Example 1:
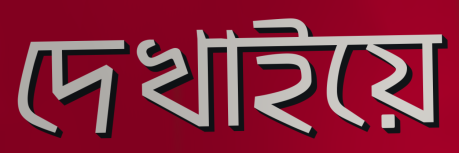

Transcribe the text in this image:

দেখাইয়ে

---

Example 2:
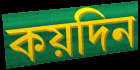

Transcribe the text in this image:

কয়দিন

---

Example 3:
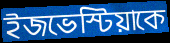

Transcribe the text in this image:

ইজভেস্টিয়াকে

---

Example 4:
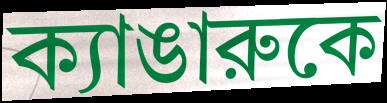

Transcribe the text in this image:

ক্যাঙারুকে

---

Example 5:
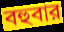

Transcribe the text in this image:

বহুবার